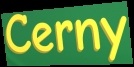
Cerny